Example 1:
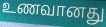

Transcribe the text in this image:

உணவானது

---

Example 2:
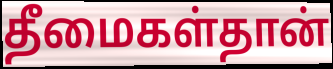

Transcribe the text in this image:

தீமைகள்தான்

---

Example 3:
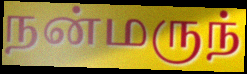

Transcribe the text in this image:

நன்மருந்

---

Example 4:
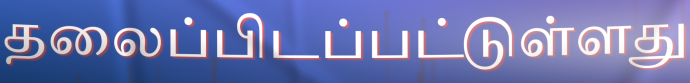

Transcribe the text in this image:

தலைப்பிடப்பட்டுள்ளது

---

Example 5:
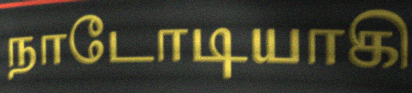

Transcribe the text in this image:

நாடோடியாகி